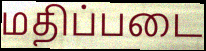
மதிப்படை